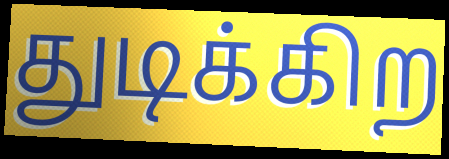
துடிக்கிற